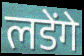
लडेंगे